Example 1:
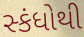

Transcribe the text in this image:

સ્કંધોથી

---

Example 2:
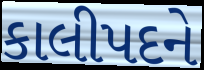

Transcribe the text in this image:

કાલીપદને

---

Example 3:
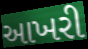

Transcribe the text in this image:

આખરી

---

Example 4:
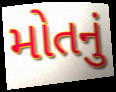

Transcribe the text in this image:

મોતનું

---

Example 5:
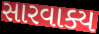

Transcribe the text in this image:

સારવાક્ય